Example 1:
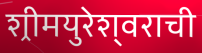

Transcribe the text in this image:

श्रीमयुरेश्वराची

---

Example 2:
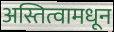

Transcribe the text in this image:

अस्तित्वामधून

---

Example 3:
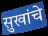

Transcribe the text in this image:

सुखांचे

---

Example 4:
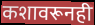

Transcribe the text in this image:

कशावरूनही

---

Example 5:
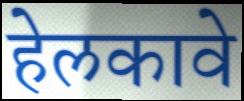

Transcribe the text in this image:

हेलकावे